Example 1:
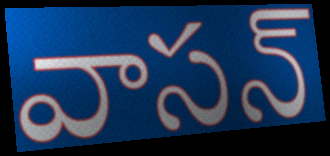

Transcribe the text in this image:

వాసన్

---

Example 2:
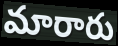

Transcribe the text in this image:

మారారు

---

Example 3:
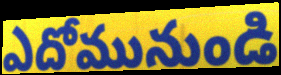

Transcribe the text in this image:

ఎదోమునుండి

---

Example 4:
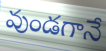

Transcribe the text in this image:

వుండగానే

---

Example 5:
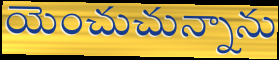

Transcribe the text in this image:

యెంచుచున్నాను